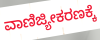
ವಾಣಿಜ್ಯೀಕರಣಕ್ಕೆ